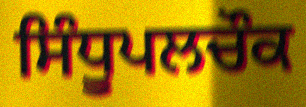
ਸਿੰਧੂਪਲਚੌਕ